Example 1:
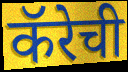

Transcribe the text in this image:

कॅरेची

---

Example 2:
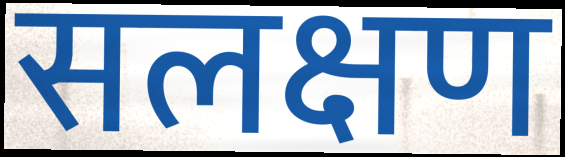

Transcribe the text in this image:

सलक्षण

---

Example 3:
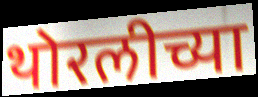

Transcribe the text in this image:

थोरलीच्या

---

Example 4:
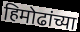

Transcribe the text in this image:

हिमोढांच्या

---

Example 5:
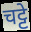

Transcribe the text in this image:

चट्टे